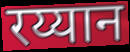
रय्यान